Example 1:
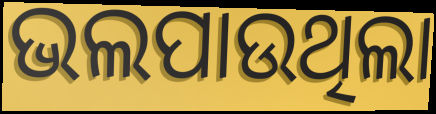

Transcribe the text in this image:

ଭଲପାଉଥିଲା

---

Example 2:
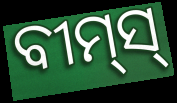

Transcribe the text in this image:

ବୀମ୍‌ସ୍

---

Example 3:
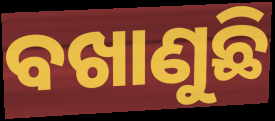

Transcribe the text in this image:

ବଖାଣୁଛି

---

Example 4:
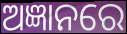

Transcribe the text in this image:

ଅଜ୍ଞାନରେ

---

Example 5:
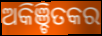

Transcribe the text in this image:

ଅକିଞ୍ଚିତକର